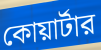
কোয়ার্টার